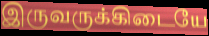
இருவருக்கிடையே